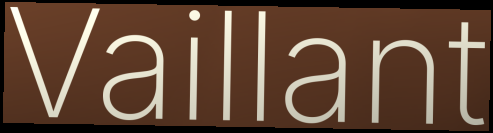
Vaillant